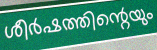
ശീർഷത്തിന്റെയും